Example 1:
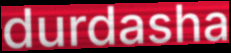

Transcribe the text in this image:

durdasha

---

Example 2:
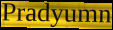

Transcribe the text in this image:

Pradyumn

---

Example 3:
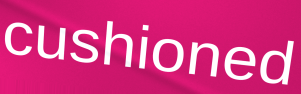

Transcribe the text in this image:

cushioned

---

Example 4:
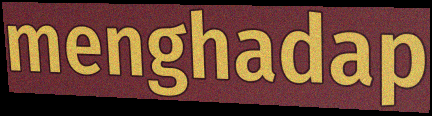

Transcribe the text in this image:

menghadap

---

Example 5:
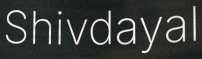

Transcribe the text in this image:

Shivdayal